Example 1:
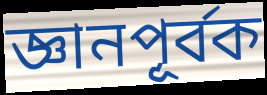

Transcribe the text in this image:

জ্ঞানপূর্বক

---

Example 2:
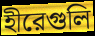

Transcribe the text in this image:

হীরেগুলি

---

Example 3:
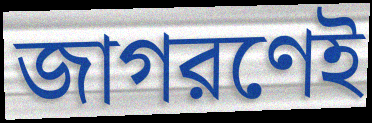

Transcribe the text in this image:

জাগরণেই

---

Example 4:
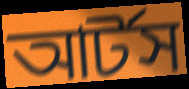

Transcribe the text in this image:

আর্টস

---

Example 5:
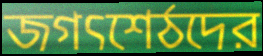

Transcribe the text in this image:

জগৎশেঠদের